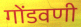
गोंडवणी